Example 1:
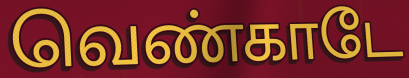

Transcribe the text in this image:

வெண்காடே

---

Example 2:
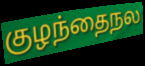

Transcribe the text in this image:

குழந்தைநல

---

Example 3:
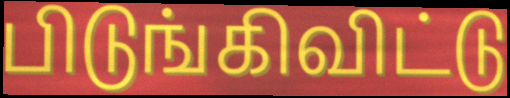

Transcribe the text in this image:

பிடுங்கிவிட்டு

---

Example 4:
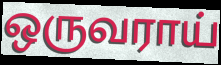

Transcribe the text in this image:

ஒருவராய்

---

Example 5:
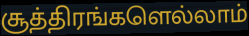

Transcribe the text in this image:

சூத்திரங்களெல்லாம்